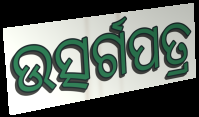
ଉତ୍ସର୍ଗପତ୍ର